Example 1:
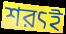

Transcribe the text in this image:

শরৎই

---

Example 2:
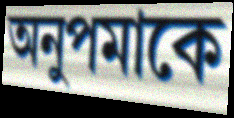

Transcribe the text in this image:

অনুপমাকে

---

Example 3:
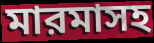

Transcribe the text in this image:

মারমাসহ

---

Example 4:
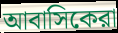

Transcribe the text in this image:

আবাসিকেরা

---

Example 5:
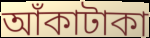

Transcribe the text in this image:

আঁকাটাকা